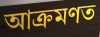
আক্ৰমণত